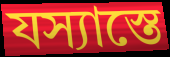
যস্যাস্তে